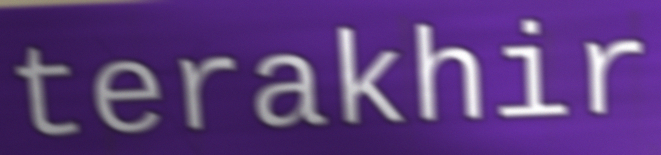
terakhir